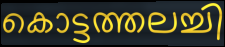
കൊട്ടത്തലച്ചി